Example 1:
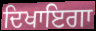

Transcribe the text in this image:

ਦਿਖਾਇਗਾ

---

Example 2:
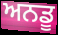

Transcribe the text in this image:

ਅਨਡੂ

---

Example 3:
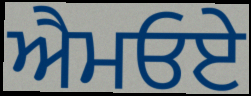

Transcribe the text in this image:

ਐਮਓਏ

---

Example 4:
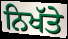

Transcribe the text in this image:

ਨਿਖੱਤੇ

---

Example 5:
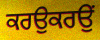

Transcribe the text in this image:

ਕਰਉਕਰਉਂ